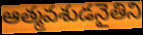
ఆత్మవశుడనైతిని